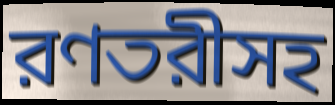
রণতরীসহ